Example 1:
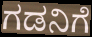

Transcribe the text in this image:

ಗಡನಿಗೆ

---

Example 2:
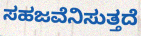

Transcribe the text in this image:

ಸಹಜವೆನಿಸುತ್ತದೆ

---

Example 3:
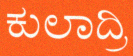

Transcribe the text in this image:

ಕುಲಾದ್ರಿ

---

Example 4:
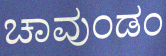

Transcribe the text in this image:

ಚಾವುಂಡಂ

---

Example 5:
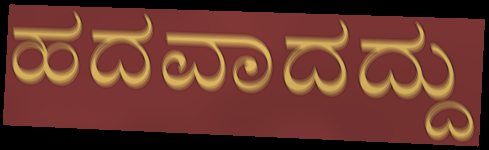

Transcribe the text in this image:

ಹದವಾದದ್ದು